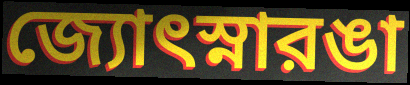
জ্যোৎস্নারঙা